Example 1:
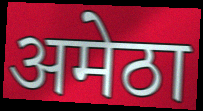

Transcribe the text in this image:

अमेठा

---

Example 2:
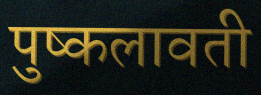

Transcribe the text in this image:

पुष्कलावती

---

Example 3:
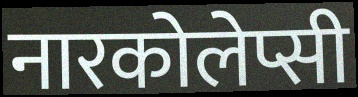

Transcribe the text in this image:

नारकोलेप्सी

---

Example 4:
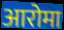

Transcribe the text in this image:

आरोमा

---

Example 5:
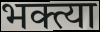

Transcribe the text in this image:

भक्त्या